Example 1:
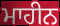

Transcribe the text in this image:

ਮਾਹੀਨ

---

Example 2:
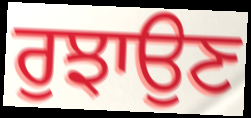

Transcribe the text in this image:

ਰੁਝਾਉਣ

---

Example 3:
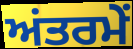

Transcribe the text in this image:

ਅਂਤਰਮੇਂ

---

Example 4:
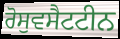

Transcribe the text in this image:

ਰੋਸੁਵਸੈਟਟੀਨ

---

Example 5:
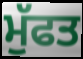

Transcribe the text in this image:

ਮੁੱਫਤ